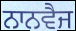
ਨਾਨਵੈਜ